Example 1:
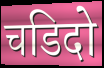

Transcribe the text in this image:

चडिदो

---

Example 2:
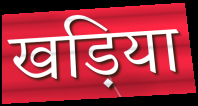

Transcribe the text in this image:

खड़िया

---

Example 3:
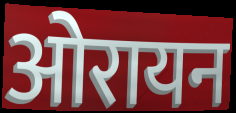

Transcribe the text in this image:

ओरायन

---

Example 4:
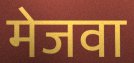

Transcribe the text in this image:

मेजवा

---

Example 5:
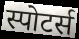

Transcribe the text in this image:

स्पोटर्स